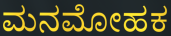
ಮನಮೋಹಕ